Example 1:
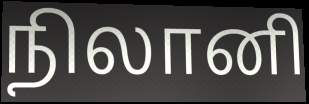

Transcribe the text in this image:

நிலானி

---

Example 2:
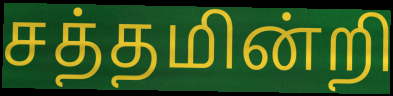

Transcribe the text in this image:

சத்தமின்றி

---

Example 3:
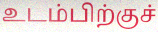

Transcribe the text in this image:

உடம்பிற்குச்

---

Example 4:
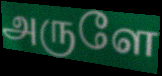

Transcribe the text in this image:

அருளே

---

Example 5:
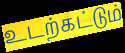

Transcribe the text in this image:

உடற்கட்டும்